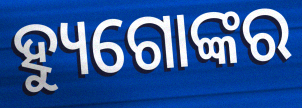
ହ୍ୟୁଗୋଙ୍କର